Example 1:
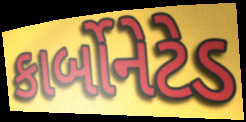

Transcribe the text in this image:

કાર્બોનેટેડ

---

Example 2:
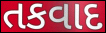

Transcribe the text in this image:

તકવાદ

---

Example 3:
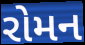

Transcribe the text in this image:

રોમન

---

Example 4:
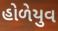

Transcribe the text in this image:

હોળેયુવ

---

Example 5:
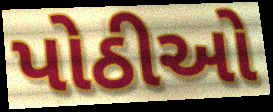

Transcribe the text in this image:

પોઠીઓ